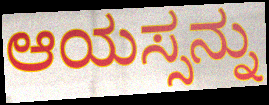
ಆಯಸ್ಸನ್ನು